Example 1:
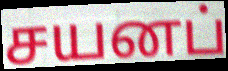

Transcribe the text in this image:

சயனப்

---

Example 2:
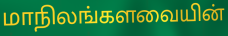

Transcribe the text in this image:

மாநிலங்களவையின்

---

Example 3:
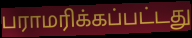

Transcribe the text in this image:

பராமரிக்கப்பட்டது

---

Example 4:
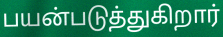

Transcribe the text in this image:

பயன்படுத்துகிறார்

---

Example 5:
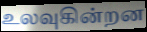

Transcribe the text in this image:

உலவுகின்றன